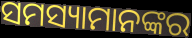
ସମସ୍ୟାମାନଙ୍କର